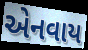
એનવાય